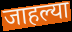
जाहल्या